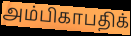
அம்பிகாபதிக்